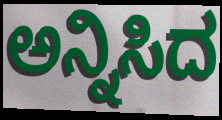
ಅನ್ನಿಸಿದ